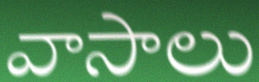
వాసాలు